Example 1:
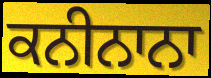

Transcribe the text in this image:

ਕਨੀਨਾਨਾ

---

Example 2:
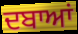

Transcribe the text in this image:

ਦਬਾਆਂ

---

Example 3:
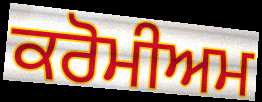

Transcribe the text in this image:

ਕਰੋਮੀਅਮ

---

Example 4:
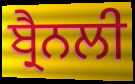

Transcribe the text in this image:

ਬ੍ਰੈਨਲੀ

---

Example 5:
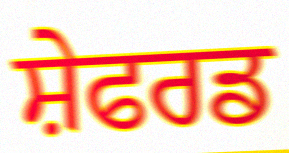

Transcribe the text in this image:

ਸ਼ੇਫਰਡ